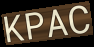
KPAC